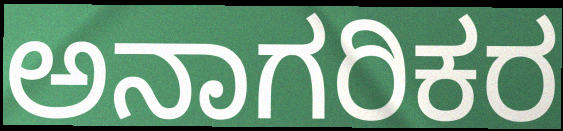
ಅನಾಗರಿಕರ